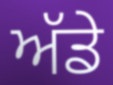
ਅੱਡੇ